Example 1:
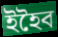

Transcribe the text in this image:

ইহৈব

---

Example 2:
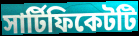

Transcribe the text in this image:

সার্টিফিকেটটি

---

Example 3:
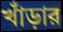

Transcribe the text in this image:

খাঁড়ার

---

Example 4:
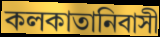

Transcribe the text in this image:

কলকাতানিবাসী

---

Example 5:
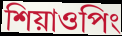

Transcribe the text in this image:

শিয়াওপিং